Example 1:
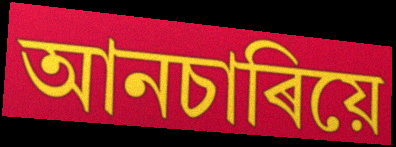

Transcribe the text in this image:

আনচাৰিয়ে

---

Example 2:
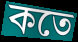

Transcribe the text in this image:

কতে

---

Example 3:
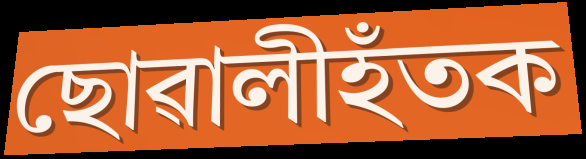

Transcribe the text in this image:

ছোৱালীহঁতক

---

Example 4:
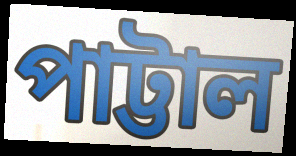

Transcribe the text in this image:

পাট্টাল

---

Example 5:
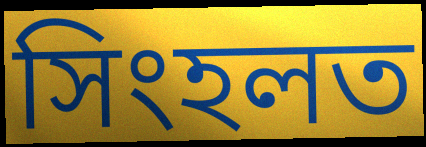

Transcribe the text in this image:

সিংহলত